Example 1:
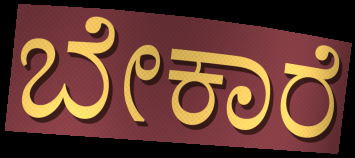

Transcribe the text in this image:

ಬೇಕಾರೆ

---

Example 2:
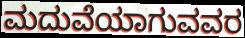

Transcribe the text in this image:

ಮದುವೆಯಾಗುವವರ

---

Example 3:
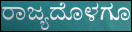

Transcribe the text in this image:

ರಾಜ್ಯದೊಳಗೂ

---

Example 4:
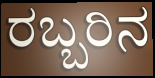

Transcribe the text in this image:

ರಬ್ಬರಿನ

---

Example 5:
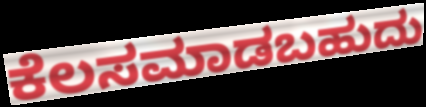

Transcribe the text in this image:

ಕೆಲಸಮಾಡಬಹುದು